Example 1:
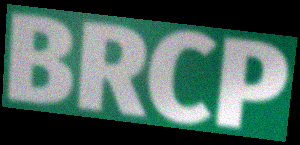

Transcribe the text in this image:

BRCP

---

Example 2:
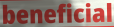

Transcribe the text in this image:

beneficial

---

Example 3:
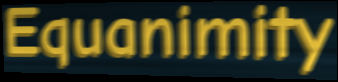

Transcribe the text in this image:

Equanimity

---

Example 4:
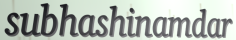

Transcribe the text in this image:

subhashinamdar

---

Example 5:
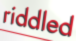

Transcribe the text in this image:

riddled